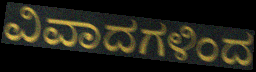
ವಿವಾದಗಳಿಂದ